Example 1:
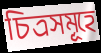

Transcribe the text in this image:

চিত্ৰসমূহে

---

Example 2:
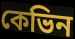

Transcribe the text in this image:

কেভিন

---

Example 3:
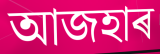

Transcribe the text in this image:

আজহাৰ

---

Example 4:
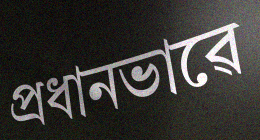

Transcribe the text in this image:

প্ৰধানভাৱে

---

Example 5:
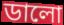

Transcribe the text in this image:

ডালো